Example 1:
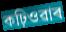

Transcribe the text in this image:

কঢ়িওৱাৰ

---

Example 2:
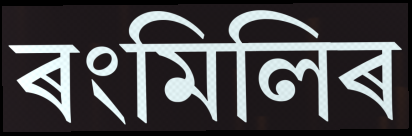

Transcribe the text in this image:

ৰংমিলিৰ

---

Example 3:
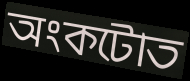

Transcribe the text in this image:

অংকটোত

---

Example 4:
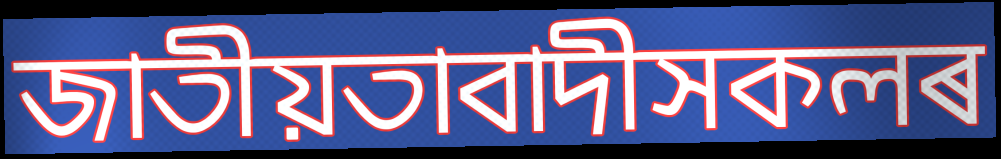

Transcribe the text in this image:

জাতীয়তাবাদীসকলৰ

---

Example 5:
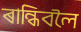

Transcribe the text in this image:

ৰান্ধিবলৈ